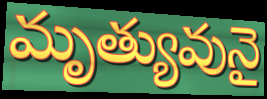
మృత్యువునై